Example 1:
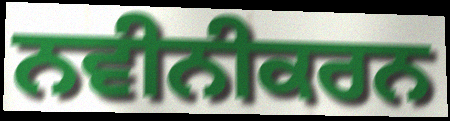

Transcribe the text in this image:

ਨਵੀਨੀਕਰਨ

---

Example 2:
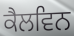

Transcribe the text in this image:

ਕੈਲਵਿਨ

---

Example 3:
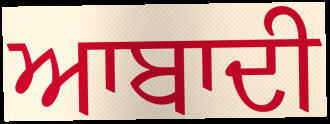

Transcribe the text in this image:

ਆਬਾਦੀ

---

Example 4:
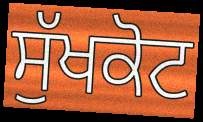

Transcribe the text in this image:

ਸੁੱਖਕੋਟ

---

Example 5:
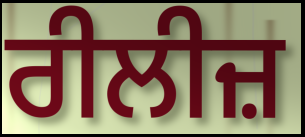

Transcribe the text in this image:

ਰੀਲੀਜ਼